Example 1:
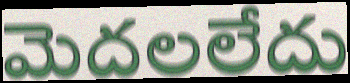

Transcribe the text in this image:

మెదలలేదు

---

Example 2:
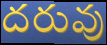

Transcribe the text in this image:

దరువు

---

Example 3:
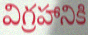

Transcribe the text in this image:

విగ్రహానికి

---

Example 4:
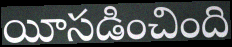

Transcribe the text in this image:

యీసడించింది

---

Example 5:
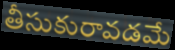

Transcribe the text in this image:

తీసుకురావడమే